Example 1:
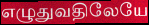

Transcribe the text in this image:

எழுதுவதிலேயே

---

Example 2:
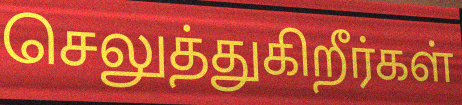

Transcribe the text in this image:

செலுத்துகிறீர்கள்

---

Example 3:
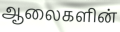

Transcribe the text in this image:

ஆலைகளின்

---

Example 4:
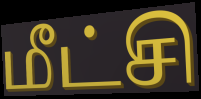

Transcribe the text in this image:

மீட்சி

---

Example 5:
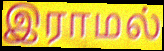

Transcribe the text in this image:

இராமல்